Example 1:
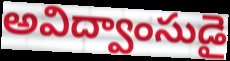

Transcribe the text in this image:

అవిద్వాంసుడై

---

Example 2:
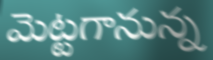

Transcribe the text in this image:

మెట్టగానున్న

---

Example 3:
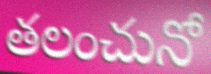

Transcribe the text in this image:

తలంచునో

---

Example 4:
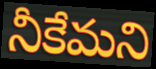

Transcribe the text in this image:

నీకేమని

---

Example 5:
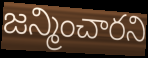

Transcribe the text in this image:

జన్మించారని